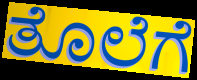
ತೊಲೆಗೆ